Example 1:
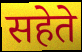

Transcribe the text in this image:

सहेते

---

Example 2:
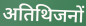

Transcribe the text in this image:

अतिथिजनों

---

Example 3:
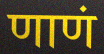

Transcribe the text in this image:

णाणं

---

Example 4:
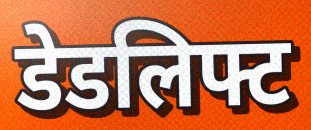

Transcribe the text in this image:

डेडलिफ्ट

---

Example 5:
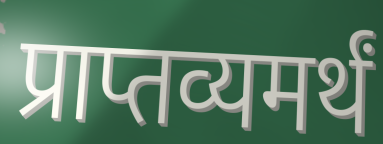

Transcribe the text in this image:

प्राप्तव्यमर्थं